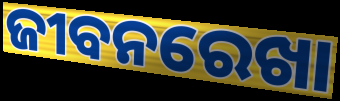
ଜୀବନରେଖା